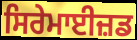
ਸਿਰੇਮਾਈਜ਼ਡ